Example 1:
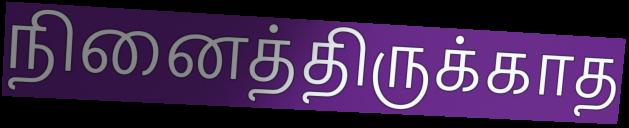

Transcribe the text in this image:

நினைத்திருக்காத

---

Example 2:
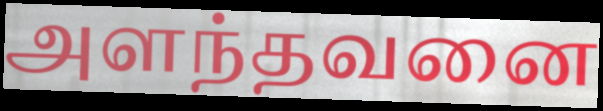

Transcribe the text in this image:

அளந்தவனை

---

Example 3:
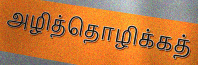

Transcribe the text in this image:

அழித்தொழிக்கத்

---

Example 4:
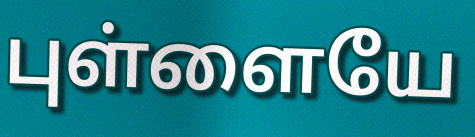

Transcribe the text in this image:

புள்ளையே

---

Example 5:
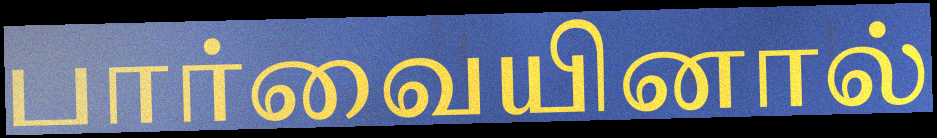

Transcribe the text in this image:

பார்வையினால்